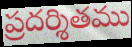
ప్రదర్శితము